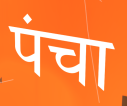
पंचा